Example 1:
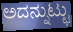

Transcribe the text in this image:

ಅದನ್ನುಟ್ಟು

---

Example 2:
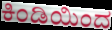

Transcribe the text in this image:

ಕಿಂಡಿಯಿಂದ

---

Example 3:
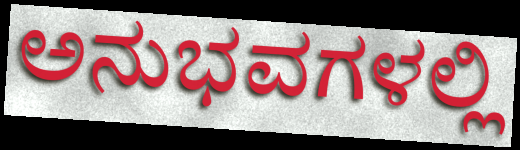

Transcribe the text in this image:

ಅನುಭವಗಳಲ್ಲಿ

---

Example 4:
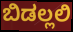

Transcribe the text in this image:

ಬಿಡಲ್ಲಲಿ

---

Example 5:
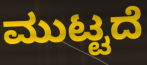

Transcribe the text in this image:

ಮುಟ್ಟದೆ